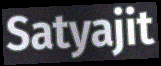
Satyajit